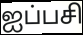
ஐப்பசி